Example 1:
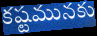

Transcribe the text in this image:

కష్టమునకు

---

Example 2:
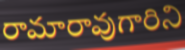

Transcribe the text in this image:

రామారావుగారిని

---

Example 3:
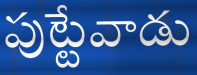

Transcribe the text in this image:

పుట్టేవాడు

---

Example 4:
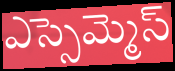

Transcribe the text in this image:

ఎస్సెమ్మెస్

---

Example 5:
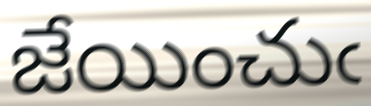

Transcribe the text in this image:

జేయించుఁ